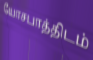
யோசபாத்திடம்